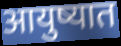
आयुष्यात